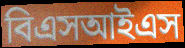
বিএসআইএস